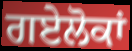
ਗਏਲੋਕਾਂ